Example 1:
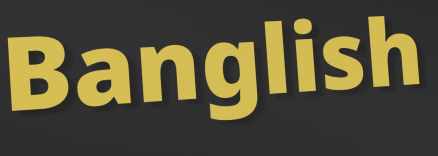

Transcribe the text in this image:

Banglish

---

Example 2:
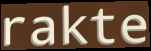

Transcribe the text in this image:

rakte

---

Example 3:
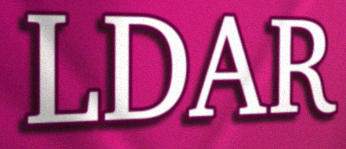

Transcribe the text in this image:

LDAR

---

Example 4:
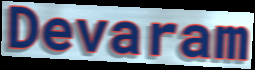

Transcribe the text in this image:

Devaram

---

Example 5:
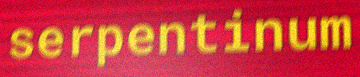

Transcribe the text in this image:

serpentinum